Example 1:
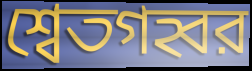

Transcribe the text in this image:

শ্বেতগহ্বর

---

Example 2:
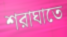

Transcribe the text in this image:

শরাঘাতে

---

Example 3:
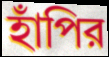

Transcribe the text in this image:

হাঁপির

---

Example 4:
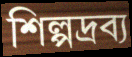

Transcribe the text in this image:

শিল্পদ্রব্য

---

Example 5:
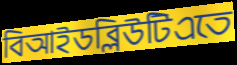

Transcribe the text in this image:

বিআইডব্লিউটিএতে